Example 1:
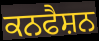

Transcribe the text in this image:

ਕਨਫੈਸ਼ਨ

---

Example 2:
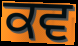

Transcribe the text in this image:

ਕਵ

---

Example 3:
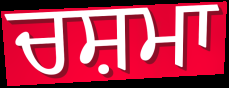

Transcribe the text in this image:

ਚਸ਼ਮਾ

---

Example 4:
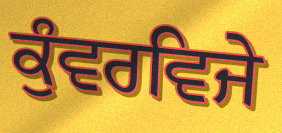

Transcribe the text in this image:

ਕੁੰਵਰਵਿਜੇ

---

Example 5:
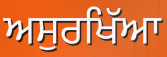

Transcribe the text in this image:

ਅਸੁਰਖਿੱਆ